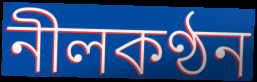
নীলকণ্ঠন